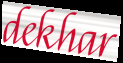
dekhar